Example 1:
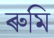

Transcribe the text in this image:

ৰুমি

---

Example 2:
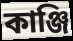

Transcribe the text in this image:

কাঞ্জি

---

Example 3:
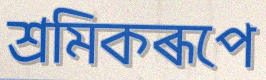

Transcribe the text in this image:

শ্ৰমিকৰূপে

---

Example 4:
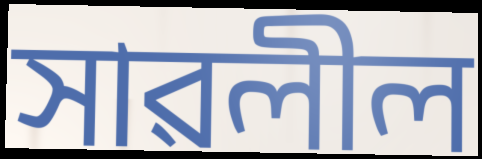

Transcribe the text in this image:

সাৱলীল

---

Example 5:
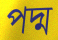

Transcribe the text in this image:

পদ্ম